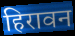
हिरावन